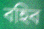
বহিব